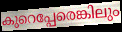
കുറെപ്പേരെങ്കിലും